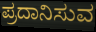
ಪ್ರದಾನಿಸುವ